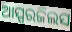
ଆସ୍ପରଜିଲସ